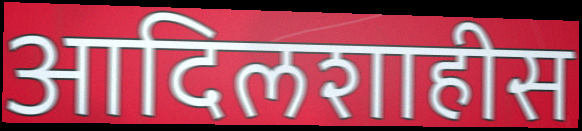
आदिलशाहीस